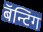
बॅन्टिंग